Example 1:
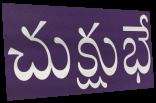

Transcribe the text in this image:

చుక్షుభే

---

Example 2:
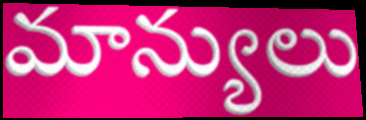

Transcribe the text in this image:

మాన్యులు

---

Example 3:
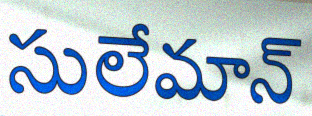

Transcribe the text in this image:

సులేమాన్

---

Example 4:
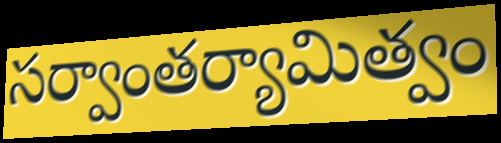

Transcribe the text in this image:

సర్వాంతర్యామిత్వం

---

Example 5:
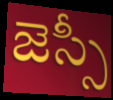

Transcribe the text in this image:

జెస్సీ